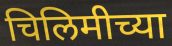
चिलिमीच्या